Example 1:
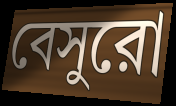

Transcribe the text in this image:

বেসুরো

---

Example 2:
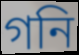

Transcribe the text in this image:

গনি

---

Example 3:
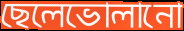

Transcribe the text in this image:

ছেলেভোলানো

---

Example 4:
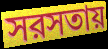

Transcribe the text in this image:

সরসতায়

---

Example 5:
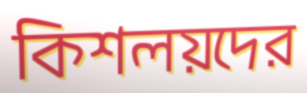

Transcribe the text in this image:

কিশলয়দের